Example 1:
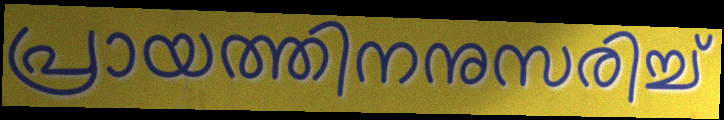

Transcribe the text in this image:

പ്രായത്തിനനുസരിച്ച്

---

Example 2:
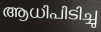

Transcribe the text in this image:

ആധിപിടിച്ചു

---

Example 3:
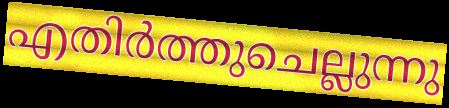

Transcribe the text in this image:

എതിർത്തുചെല്ലുന്നു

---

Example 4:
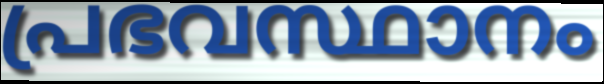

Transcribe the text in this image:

പ്രഭവസ്ഥാനം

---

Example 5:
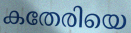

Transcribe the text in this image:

കതേരിയെ